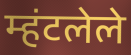
म्हंटलेले